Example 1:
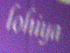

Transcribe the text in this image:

lohiya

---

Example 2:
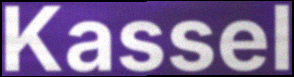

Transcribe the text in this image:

Kassel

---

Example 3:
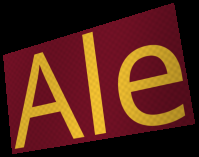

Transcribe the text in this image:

Ale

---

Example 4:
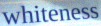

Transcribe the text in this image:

whiteness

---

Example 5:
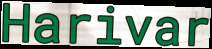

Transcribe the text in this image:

Harivar